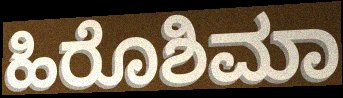
ಹಿರೊಶಿಮಾ